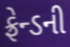
ફ્રેન્ડની